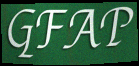
GFAP